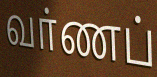
வர்ணப்